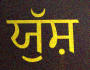
ਯੁੱਸ਼